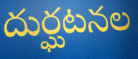
దుర్ఘటనల